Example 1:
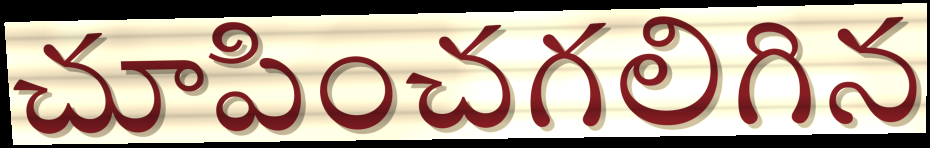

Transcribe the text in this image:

చూపించగలిగిన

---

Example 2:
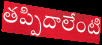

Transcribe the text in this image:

తప్పిదాలేంటి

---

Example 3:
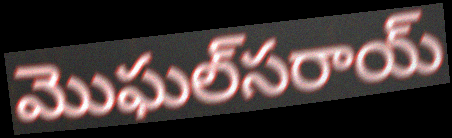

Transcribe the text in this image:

మొఘల్‌సరాయ్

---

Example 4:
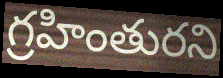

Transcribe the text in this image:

గ్రహింతురని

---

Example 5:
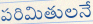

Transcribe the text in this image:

పరిమితులనే